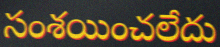
సంశయించలేదు